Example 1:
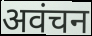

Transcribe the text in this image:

अवंचन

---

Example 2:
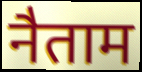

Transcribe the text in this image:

नैताम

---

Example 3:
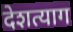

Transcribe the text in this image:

देशत्याग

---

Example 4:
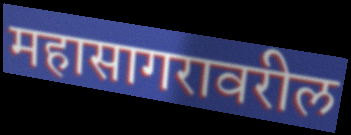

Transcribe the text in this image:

महासागरावरील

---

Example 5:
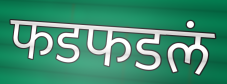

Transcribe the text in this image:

फडफडलं